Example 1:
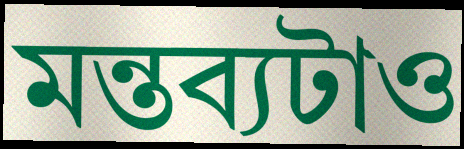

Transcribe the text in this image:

মন্তব্যটাও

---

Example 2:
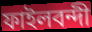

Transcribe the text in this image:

ফাইলবন্দী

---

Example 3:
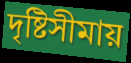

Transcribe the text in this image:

দৃষ্টিসীমায়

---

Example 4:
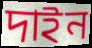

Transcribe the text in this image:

দাইন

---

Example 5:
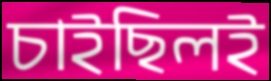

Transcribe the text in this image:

চাইছিলই